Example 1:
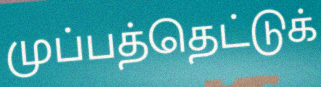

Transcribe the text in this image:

முப்பத்தெட்டுக்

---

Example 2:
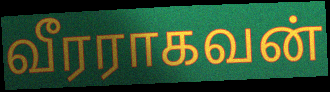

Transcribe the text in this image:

வீரராகவன்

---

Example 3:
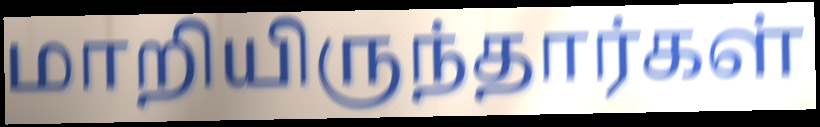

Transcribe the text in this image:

மாறியிருந்தார்கள்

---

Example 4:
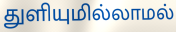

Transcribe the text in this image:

துளியுமில்லாமல்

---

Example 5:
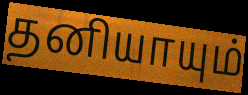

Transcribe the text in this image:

தனியாயும்